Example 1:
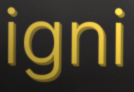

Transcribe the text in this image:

igni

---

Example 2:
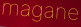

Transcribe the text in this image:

magane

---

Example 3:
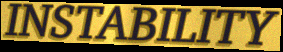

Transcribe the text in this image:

INSTABILITY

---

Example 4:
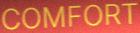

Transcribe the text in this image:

COMFORT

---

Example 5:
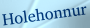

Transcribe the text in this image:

Holehonnur